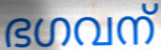
ഭഗവന്